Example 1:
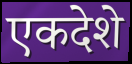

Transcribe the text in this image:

एकदेशे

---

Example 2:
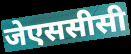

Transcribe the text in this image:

जेएससीसी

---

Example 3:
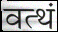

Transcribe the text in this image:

वत्थं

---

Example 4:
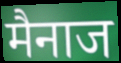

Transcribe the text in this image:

मैनाज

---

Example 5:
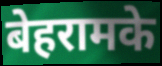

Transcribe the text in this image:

बेहरामके